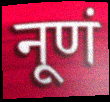
नूणं